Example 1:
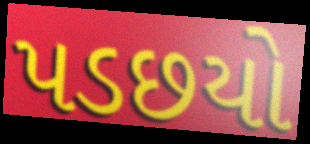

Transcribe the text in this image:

પડછયો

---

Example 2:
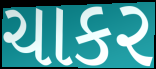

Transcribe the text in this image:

ચાકર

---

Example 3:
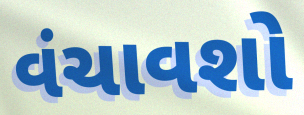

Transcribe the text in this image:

વંચાવશો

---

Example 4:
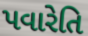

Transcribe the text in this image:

પવારેતિ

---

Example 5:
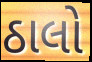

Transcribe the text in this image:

ઠાલો